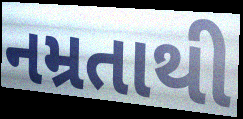
નમ્રતાથી